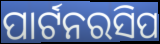
ପାର୍ଟନରସିପ